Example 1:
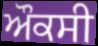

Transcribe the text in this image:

ਔਕਸੀ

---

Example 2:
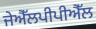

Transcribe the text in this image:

ਜੇਐੱਲਪੀਪੀਐੱਲ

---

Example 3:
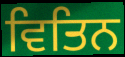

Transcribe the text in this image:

ਵਿਤਿਨ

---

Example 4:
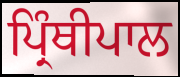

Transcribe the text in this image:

ਪ੍ਰਿੰਥੀਪਾਲ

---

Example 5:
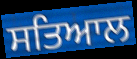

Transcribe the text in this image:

ਸਤਿਆਲ